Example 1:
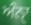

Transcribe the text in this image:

ਅੰਨੑਾ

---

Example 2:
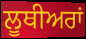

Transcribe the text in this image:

ਲੂਥੀਅਰਾਂ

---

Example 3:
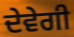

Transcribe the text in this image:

ਦੇਵੇਗੀ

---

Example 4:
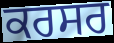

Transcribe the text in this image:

ਕਰਸਰ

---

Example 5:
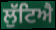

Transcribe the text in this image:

ਲੁੱਟਿਐ